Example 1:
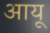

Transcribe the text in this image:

आयू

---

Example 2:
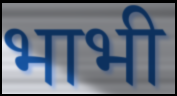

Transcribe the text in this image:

भाभी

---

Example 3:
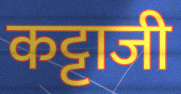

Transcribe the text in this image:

कट्टाजी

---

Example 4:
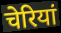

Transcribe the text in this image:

चेरियां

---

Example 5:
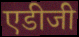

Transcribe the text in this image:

एडीजी